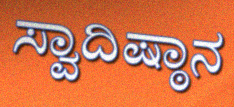
ಸ್ವಾದಿಷ್ಠಾನ